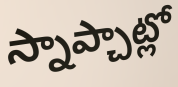
స్నాప్చాట్లో